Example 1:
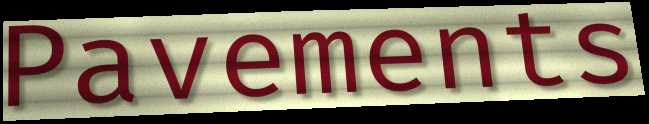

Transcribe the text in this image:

Pavements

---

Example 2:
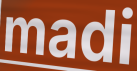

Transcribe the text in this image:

madi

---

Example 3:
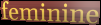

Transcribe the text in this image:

feminine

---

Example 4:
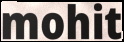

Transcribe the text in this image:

mohit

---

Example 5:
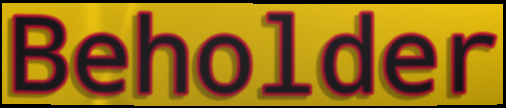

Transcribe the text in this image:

Beholder